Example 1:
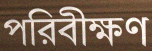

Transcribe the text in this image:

পরিবীক্ষণ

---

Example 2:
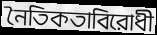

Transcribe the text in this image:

নৈতিকতাবিরোধী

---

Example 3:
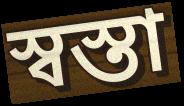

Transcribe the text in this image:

স্বস্তা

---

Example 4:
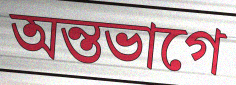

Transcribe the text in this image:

অন্তভাগে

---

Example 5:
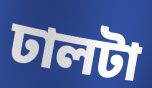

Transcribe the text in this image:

ঢালটা